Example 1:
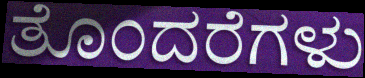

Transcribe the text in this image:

ತೊಂದರೆಗಳು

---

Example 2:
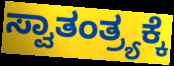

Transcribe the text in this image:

ಸ್ವಾತಂತ್ರ್ಯಕ್ಕೆ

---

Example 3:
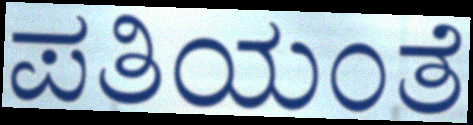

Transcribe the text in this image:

ಪತಿಯಂತೆ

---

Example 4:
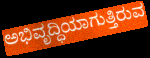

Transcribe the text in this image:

ಅಭಿವೃದ್ಧಿಯಾಗುತ್ತಿರುವ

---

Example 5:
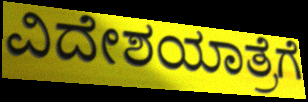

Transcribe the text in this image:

ವಿದೇಶಯಾತ್ರೆಗೆ